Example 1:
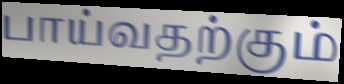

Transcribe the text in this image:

பாய்வதற்கும்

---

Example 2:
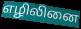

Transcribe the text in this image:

எழிலினை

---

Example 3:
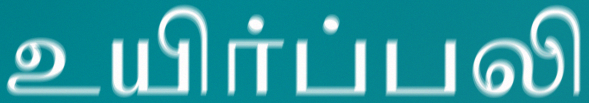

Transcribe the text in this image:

உயிர்ப்பலி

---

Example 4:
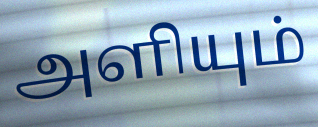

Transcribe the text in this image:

அளியும்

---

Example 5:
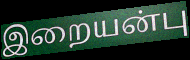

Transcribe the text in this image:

இறையன்பு